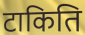
टाकिति